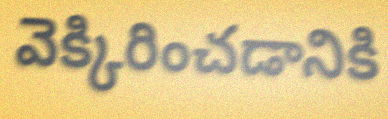
వెక్కిరించడానికి